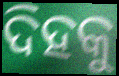
ଦିହକୁ